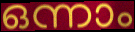
ഒന്നാം